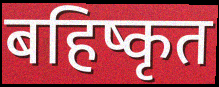
बहिष्कृत